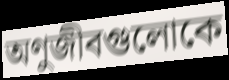
অণুজীবগুলোকে